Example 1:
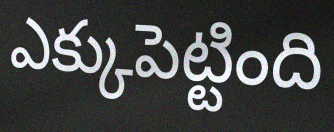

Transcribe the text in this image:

ఎక్కుపెట్టింది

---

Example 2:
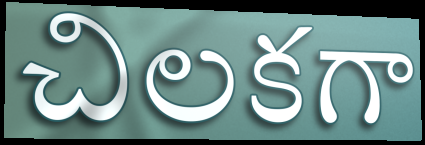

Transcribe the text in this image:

చిలకగా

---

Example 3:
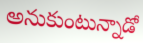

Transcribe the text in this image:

అనుకుంటున్నాడో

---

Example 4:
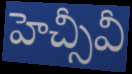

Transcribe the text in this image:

హెచ్సీవీ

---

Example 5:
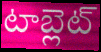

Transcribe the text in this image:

టాబ్లెట్